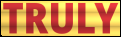
TRULY